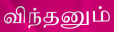
விந்தனும்